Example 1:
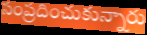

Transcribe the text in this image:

సంప్రదించుకున్నారు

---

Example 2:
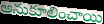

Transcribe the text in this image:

అనుకూలించాయి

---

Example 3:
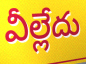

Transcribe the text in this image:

వీల్లేదు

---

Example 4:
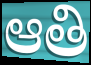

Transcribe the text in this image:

ఆతి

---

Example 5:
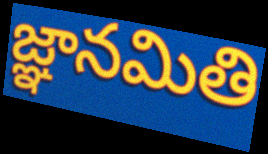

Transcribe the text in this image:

జ్ఞానమితి